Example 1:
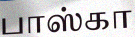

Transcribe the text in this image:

பாஸ்கா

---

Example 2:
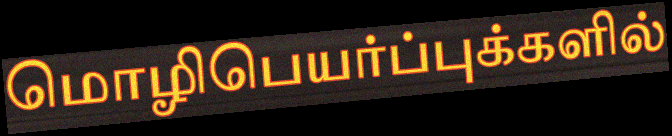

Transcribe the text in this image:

மொழிபெயர்ப்புக்களில்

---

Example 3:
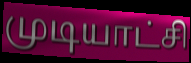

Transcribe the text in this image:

முடியாட்சி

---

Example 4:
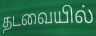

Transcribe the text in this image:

தடவையில்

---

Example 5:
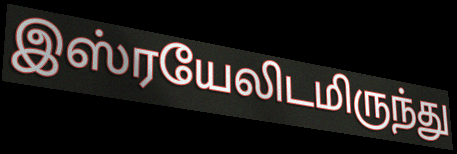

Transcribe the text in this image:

இஸ்ரயேலிடமிருந்து